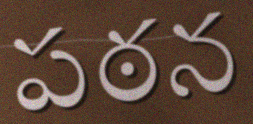
పఠన